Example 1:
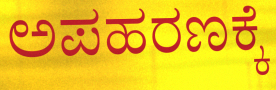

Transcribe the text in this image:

ಅಪಹರಣಕ್ಕೆ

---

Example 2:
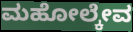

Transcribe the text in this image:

ಮಹೋಲ್ಕೇವ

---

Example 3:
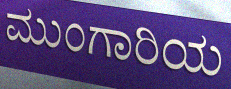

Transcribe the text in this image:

ಮುಂಗಾರಿಯ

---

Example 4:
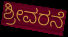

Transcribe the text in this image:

ಶ್ರೀವರನೆ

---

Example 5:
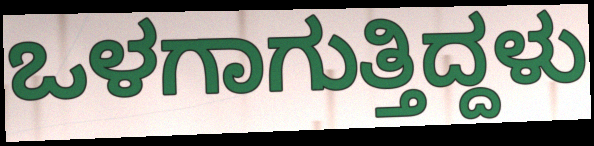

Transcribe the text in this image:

ಒಳಗಾಗುತ್ತಿದ್ದಳು